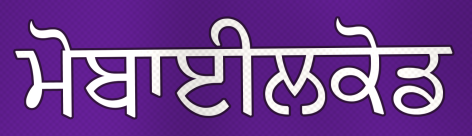
ਮੋਬਾਈਲਕੋਡ